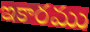
ఇకారము